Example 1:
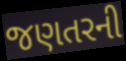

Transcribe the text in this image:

જણતરની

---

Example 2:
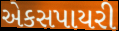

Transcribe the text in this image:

એકસપાયરી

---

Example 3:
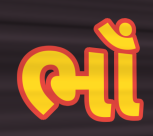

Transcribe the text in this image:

ભૉં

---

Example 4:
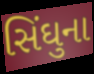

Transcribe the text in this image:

સિંઘુના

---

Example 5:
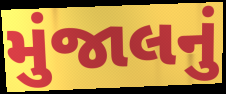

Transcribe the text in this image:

મુંજાલનું